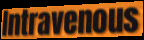
Intravenous